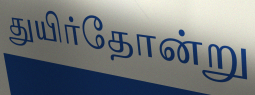
துயிர்தோன்று